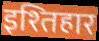
इश्तिहार